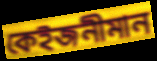
কেইজনীমান